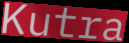
Kutra